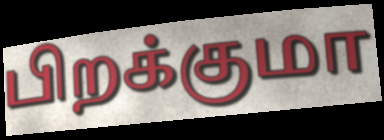
பிறக்குமா